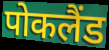
पोकलैंड